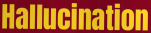
Hallucination